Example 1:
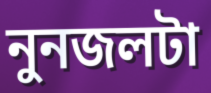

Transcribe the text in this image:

নুনজলটা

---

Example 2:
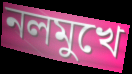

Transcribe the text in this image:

নলমুখে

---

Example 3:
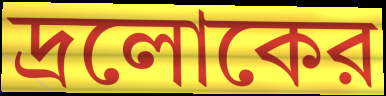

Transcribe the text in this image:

দ্রলোকের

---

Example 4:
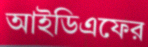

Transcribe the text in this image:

আইডিএফের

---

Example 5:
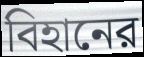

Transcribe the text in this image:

বিহানের